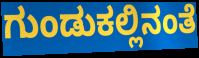
ಗುಂಡುಕಲ್ಲಿನಂತೆ